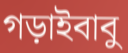
গড়াইবাবু